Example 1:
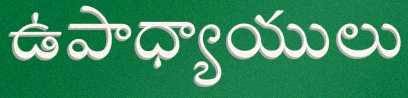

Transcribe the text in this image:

ఉపాధ్యాయులు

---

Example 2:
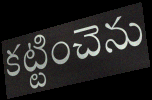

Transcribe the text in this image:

కట్టించెను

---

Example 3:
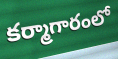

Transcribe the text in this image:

కర్మాగారంలో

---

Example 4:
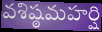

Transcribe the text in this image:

వశిష్ఠమహర్షి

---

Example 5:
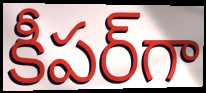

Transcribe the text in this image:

కీపర్‌గా